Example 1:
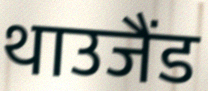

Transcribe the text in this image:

थाउजैंड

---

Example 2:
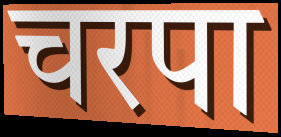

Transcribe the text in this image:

चरपा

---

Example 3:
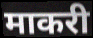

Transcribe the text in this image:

माकरी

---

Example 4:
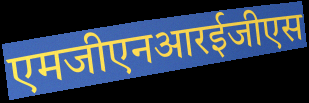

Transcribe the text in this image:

एमजीएनआरईजीएस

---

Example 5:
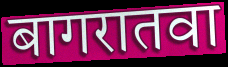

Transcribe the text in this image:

बागरातवा